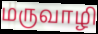
மருவாழி